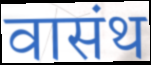
वासंथ